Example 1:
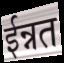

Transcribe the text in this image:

ईन्नत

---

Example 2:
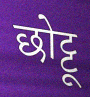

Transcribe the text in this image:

छोट्टू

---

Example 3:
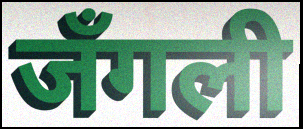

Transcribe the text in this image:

जँगली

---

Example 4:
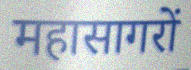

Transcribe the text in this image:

महासागरों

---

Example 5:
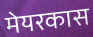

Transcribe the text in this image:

मेयरकास